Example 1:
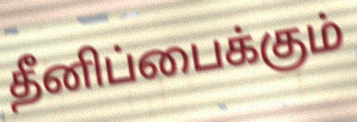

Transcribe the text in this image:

தீனிப்பைக்கும்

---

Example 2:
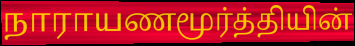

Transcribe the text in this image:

நாராயணமூர்த்தியின்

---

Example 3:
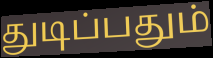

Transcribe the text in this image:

துடிப்பதும்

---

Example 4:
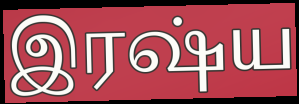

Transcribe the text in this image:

இரஷ்ய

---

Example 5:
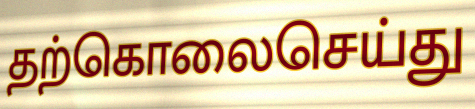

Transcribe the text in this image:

தற்கொலைசெய்து